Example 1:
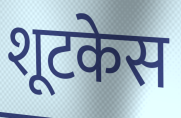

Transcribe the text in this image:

शूटकेस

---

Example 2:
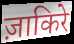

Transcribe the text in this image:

ज़ाकिरे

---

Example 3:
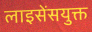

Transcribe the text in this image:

लाइसेंसयुक्त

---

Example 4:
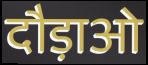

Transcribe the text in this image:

दौड़ाओ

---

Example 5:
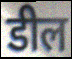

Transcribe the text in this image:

डील